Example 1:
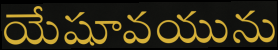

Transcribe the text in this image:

యేషూవయును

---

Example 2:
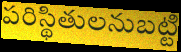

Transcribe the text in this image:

పరిస్థితులనుబట్టి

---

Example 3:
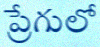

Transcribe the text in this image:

ప్రేగులో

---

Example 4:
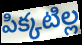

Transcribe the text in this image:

పిక్కటిల్ల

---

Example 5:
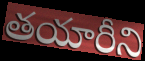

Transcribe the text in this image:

తయారీని